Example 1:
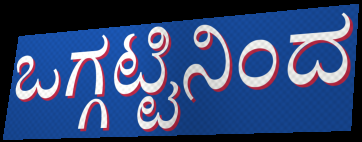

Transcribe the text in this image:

ಒಗ್ಗಟ್ಟಿನಿಂದ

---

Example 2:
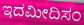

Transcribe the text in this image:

ಇದಮೀದಿಸಂ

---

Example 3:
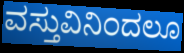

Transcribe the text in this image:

ವಸ್ತುವಿನಿಂದಲೂ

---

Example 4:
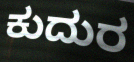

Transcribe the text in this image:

ಕುದುರ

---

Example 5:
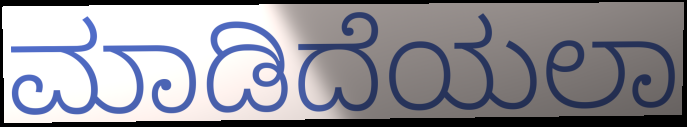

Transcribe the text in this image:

ಮಾಡಿದೆಯಲಾ